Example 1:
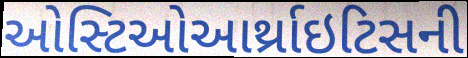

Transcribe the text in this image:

ઓસ્ટિઓઆર્થ્રાઇટિસની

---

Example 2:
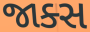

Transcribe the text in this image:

જાક્સ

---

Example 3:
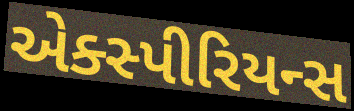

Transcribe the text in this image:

એક્સ્પીરિયન્સ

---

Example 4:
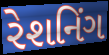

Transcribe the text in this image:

રેશનિંગ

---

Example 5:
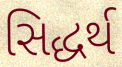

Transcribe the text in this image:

સિદ્ધર્થ